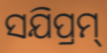
ସଯିପ୍ରମ୍